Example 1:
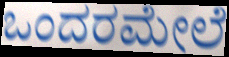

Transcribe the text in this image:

ಒಂದರಮೇಲೆ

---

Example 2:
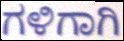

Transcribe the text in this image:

ಗಳಿಗಾಗಿ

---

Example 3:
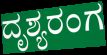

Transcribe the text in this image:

ದೃಶ್ಯರಂಗ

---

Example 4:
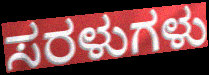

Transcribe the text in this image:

ಸರಳುಗಳು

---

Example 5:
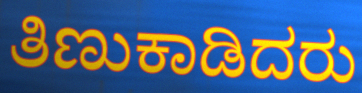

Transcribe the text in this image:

ತಿಣುಕಾಡಿದರು